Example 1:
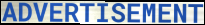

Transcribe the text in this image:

ADVERTISEMENT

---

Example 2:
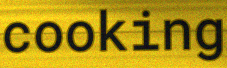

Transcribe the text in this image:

cooking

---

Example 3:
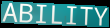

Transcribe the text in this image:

ABILITY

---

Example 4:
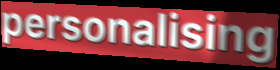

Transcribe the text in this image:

personalising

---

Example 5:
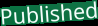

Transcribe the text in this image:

Published